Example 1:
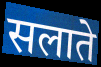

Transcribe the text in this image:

सलाते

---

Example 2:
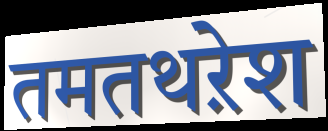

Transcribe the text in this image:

तमतथऱेश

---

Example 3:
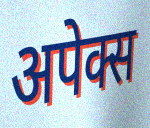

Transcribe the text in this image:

अपेक्स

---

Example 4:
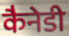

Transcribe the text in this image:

कैनेडी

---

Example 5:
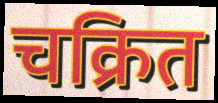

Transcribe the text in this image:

चक्रित